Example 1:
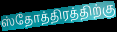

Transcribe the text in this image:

ஸ்தோத்திரத்திற்கு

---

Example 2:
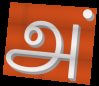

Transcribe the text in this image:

அ்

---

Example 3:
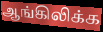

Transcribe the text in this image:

ஆங்கிலிக்க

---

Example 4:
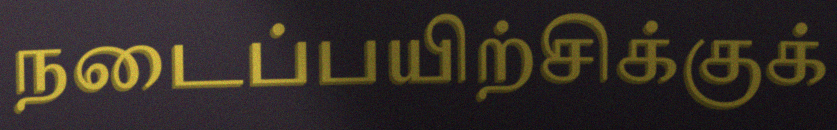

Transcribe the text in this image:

நடைப்பயிற்சிக்குக்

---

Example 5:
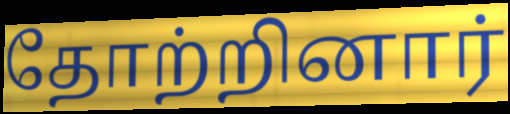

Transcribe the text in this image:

தோற்றினார்